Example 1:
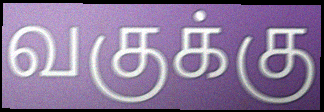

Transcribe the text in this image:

வகுக்கு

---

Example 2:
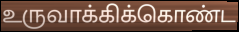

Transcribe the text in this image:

உருவாக்கிக்கொண்ட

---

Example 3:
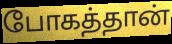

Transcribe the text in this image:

போகத்தான்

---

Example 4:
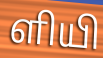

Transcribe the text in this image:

ளியி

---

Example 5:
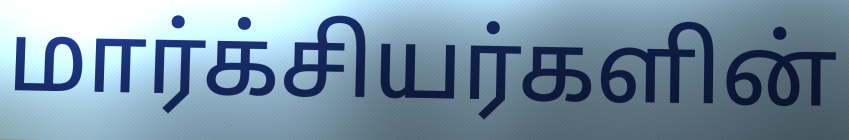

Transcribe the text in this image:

மார்க்சியர்களின்